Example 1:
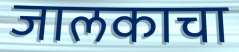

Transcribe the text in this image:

जालकाचा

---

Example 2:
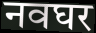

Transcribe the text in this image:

नवघर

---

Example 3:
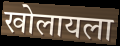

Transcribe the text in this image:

खोलायला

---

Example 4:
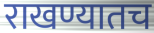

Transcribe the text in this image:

राखण्यातच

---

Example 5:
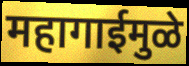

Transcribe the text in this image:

महागाईमुळे